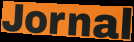
Jornal